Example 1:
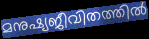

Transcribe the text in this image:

മനുഷ്യജീവിതത്തിൽ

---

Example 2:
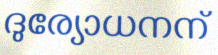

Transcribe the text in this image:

ദുര്യോധനന്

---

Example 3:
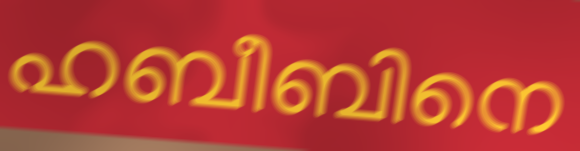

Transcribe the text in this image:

ഹബീബിനെ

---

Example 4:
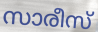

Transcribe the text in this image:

സാരീസ്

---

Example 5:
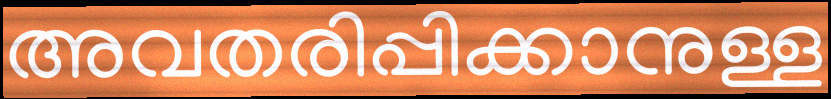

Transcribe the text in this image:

അവതരിപ്പിക്കാനുള്ള